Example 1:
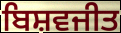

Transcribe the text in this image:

ਬਿਸ਼ਵਜੀਤ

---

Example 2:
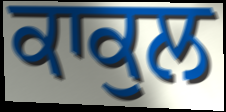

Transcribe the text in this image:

ਕਾਕੁਲ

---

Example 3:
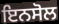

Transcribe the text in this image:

ਇਨਸੋਲ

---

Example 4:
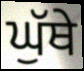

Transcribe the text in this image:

ਘੁੱਥੇ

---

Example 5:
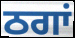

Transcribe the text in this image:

ਠਗਾਂ